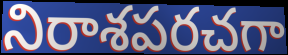
నిరాశపరచగా